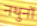
नथुनों